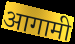
आगामी